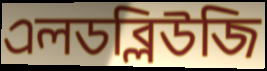
এলডব্লিউজি